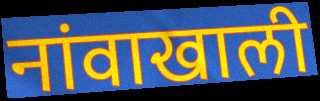
नांवाखाली